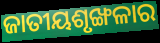
ଜାତୀୟଶୃଙ୍ଖଳାର